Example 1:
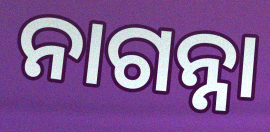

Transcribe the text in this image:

ନାଗନ୍ନା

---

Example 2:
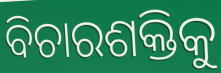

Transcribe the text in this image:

ବିଚାରଶକ୍ତିକୁ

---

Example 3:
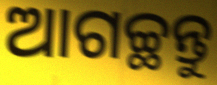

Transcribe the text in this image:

ଆଗଚ୍ଛନ୍ତୁ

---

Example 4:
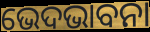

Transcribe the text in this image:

ଭେଦଭାବନା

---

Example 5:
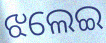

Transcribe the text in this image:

ଝଲେଇ